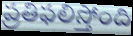
ప్రతిఫలిస్తోంది